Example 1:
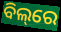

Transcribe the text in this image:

ବିଲ୍‌ରେ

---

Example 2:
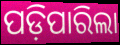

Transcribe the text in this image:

ପଡ଼ିପାରିଲା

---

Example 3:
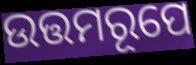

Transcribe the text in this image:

ଉତ୍ତମରୂପେ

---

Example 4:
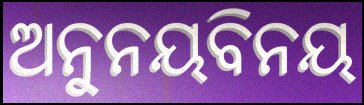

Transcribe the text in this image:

ଅନୁନୟବିନୟ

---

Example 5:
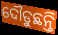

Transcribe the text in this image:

ଦୌଡୁଛନ୍ତି